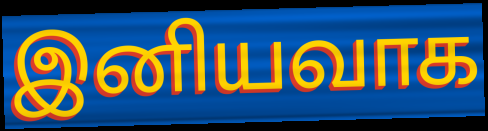
இனியவாக